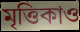
মৃত্তিকাও